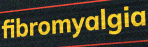
fibromyalgia